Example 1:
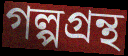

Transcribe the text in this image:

গল্পগ্রন্থ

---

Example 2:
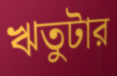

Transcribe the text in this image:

ঋতুটার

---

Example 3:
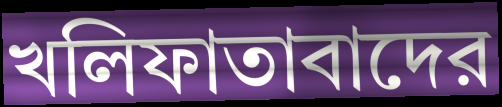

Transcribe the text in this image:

খলিফাতাবাদের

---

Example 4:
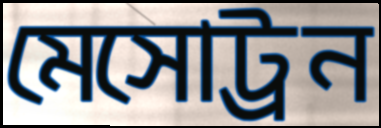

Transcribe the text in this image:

মেসোট্রন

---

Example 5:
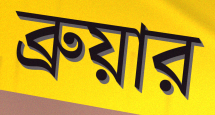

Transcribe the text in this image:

ব্রুয়ার